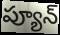
ప్యూన్